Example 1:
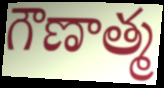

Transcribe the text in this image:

గౌణాత్మ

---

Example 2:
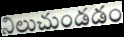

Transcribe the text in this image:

నిలుచుండడం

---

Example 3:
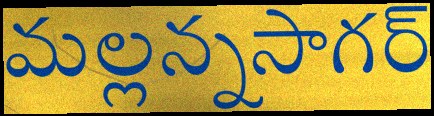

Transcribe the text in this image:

మల్లన్నసాగర్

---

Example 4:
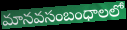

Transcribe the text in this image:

మానవసంబంధాలలో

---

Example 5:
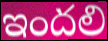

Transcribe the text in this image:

ఇందలి